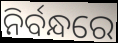
ନିର୍ବନ୍ଧରେ